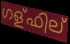
ഗള്ഫില്